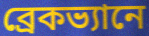
ব্রেকভ্যানে